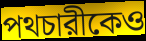
পথচারীকেও